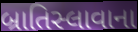
બ્રાતિસ્લાવાના